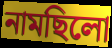
নামছিলো